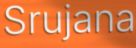
Srujana